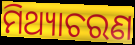
ମିଥ୍ୟାଚରଣ